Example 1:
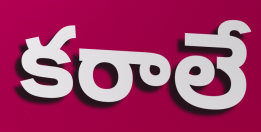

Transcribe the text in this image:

కరాలే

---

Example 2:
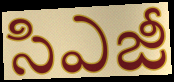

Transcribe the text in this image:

సిఎజీ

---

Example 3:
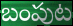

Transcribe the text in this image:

బంపుట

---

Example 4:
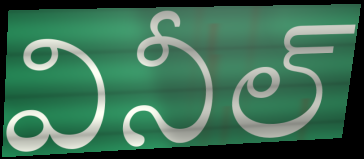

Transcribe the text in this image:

వినీల్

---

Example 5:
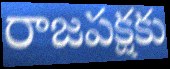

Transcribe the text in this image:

రాజపక్షకు